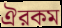
ঐরকম